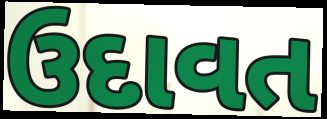
ઉદાવત